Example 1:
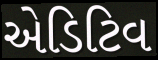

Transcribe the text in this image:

એડિટિવ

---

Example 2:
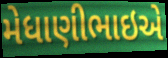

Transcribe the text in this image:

મેધાણીભાઇએ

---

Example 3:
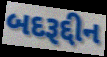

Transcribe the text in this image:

બદરૂદ્દીન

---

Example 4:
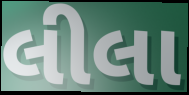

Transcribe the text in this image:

લીલા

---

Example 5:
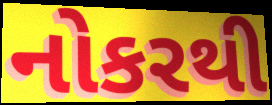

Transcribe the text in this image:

નોકરથી